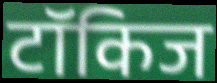
टॉकिज